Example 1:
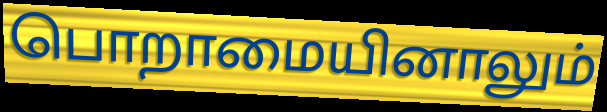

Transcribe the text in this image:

பொறாமையினாலும்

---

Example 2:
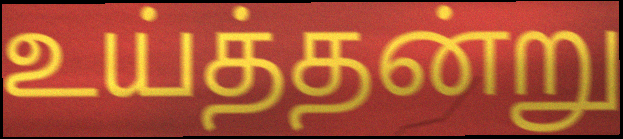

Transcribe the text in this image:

உய்த்தன்று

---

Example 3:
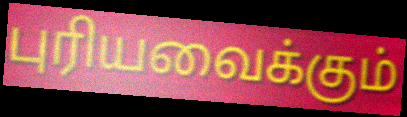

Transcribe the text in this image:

புரியவைக்கும்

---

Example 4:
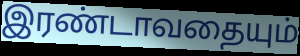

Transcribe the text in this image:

இரண்டாவதையும்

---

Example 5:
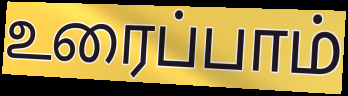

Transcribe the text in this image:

உரைப்பாம்